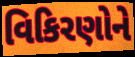
વિકિરણોને